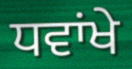
ਧਵਾਂਖੇ